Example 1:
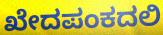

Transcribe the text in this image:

ಖೇದಪಂಕದಲಿ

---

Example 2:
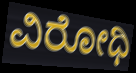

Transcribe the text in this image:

ವಿರೋಧಿ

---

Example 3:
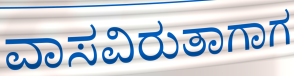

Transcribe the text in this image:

ವಾಸವಿರುತಾಗಾಗ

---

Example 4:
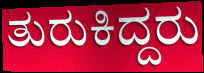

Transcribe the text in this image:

ತುರುಕಿದ್ದರು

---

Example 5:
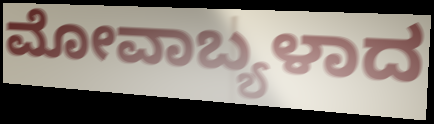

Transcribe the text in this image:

ಮೋವಾಬ್ಯಳಾದ